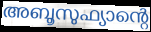
അബൂസുഫ്യാന്റെ